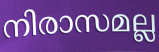
നിരാസമല്ല